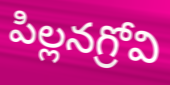
పిల్లనగ్రోవి